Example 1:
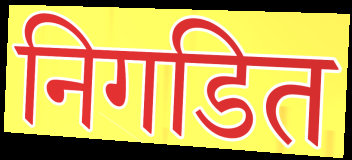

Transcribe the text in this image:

निगडित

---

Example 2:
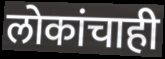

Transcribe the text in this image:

लोकांचाही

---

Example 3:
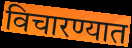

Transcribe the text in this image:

विचारण्यात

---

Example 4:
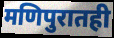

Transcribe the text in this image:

मणिपुरातही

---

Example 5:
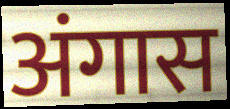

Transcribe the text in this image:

अंगास